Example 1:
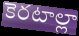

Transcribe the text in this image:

కెరటాల్లా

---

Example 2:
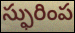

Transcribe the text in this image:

స్ఫురింప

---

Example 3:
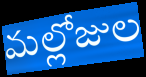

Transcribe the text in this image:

మల్లోజుల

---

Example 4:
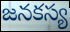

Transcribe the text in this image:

జనకస్య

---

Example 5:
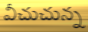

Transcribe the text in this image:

వీచుచున్న